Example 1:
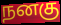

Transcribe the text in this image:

நனகு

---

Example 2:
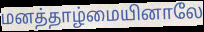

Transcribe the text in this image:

மனத்தாழ்மையினாலே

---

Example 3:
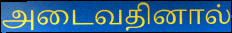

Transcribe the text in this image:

அடைவதினால்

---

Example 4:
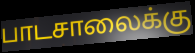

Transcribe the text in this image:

பாடசாலைக்கு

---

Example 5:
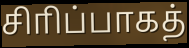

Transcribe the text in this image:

சிரிப்பாகத்